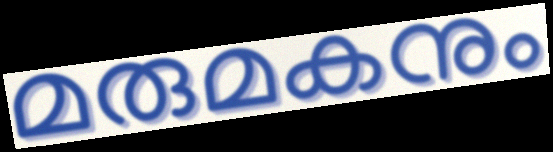
മരുമകനും